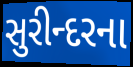
સુરીન્દરના